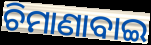
ଚିମାଣାବାଇ